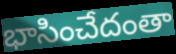
భాసించేదంతా